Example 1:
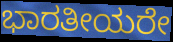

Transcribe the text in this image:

ಭಾರತೀಯರೇ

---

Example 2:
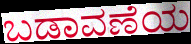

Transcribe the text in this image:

ಬಡಾವಣೆಯ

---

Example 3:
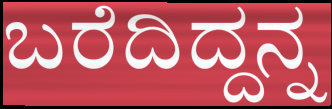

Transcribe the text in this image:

ಬರೆದಿದ್ದನ್ನ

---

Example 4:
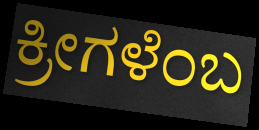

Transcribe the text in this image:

ಕ್ರೀಗಳೆಂಬ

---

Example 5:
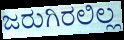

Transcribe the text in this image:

ಜರುಗಿರಲಿಲ್ಲ